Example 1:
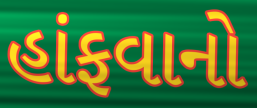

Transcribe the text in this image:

હાંફવાનો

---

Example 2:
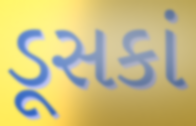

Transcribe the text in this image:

ડૂસકાં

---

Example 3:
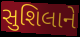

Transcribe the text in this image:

સુશિલાને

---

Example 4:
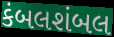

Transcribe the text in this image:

કંબલશંબલ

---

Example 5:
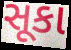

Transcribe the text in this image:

સૂકા